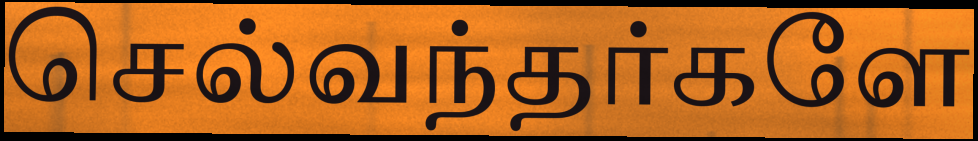
செல்வந்தர்களே